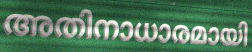
അതിനാധാരമായി